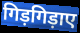
गिड़गिड़ाए